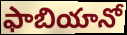
ఫాబియానో